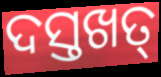
ଦସ୍ତଖତ୍